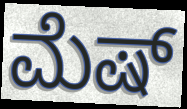
ಮೆಷ್